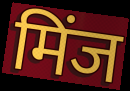
मिंज